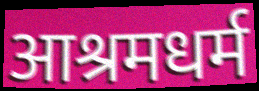
आश्रमधर्म